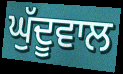
ਘੁੱਦੂਵਾਲ